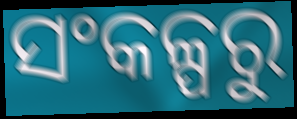
ସଂକଳ୍ପରୁ